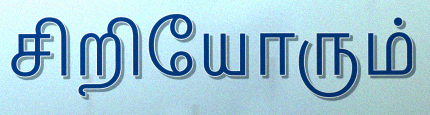
சிறியோரும்